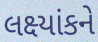
લક્ષ્યાંકને